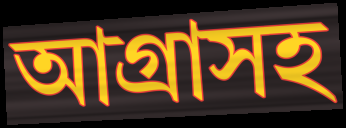
আগ্রাসহ